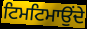
ਟਿਮਟਿਮਾਉਂਦੇ